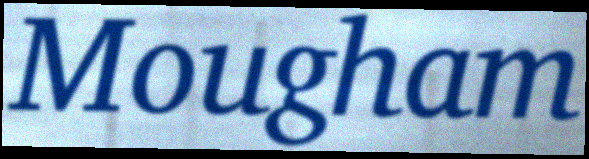
Mougham